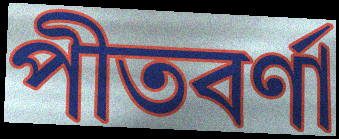
পীতবৰ্ণা